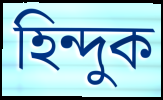
হিন্দুক